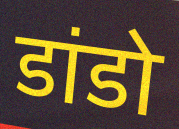
डांडो